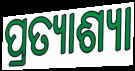
ପ୍ରତ୍ୟାଶ୍ୟା